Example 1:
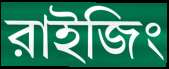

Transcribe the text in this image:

রাইজিং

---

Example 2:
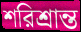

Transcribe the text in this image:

শরিশ্রান্ত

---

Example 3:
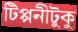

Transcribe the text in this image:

টিপ্পনীটুকু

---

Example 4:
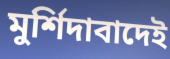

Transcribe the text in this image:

মুর্শিদাবাদেই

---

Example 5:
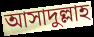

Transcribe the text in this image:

আসাদুল্লাহ